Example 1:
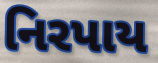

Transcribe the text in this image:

નિરપાય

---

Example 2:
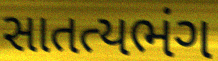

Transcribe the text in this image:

સાતત્યભંગ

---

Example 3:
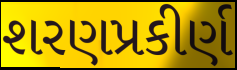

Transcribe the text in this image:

શરણપ્રકીર્ણ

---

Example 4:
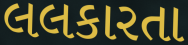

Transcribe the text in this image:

લલકારતા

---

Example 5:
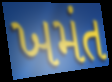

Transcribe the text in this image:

ખમંત